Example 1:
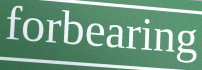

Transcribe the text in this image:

forbearing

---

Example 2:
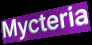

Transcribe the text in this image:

Mycteria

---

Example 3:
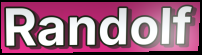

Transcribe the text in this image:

Randolf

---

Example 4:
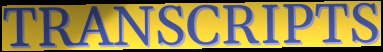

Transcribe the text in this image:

TRANSCRIPTS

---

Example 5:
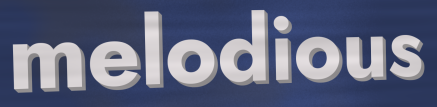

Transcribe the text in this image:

melodious